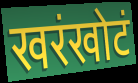
खरंखोटं